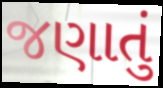
જણાતું